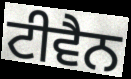
ਟੀਵੈਨ